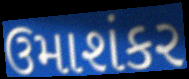
ઉમાશંકર